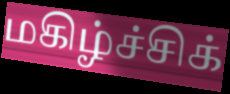
மகிழ்ச்சிக்